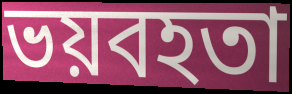
ভয়বহতা